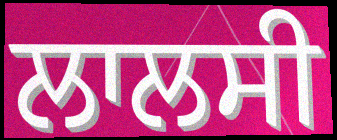
ਲਾਲਸੀ